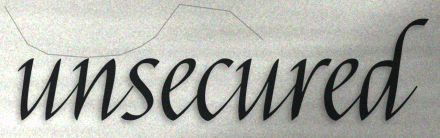
unsecured